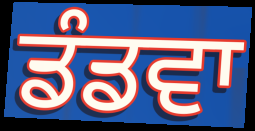
ਡੰਡਵਾ